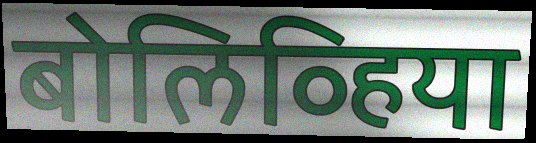
बोलिव्हिया